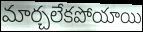
మార్చలేకపోయాయి